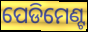
ପେଡିମେଣ୍ଟ